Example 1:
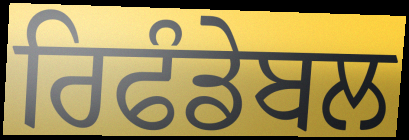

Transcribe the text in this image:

ਰਿਫੰਡੇਬਲ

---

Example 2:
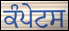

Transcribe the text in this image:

ਕੰਪੇਟਸ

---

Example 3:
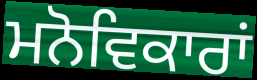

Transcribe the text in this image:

ਮਨੋਵਿਕਾਰਾਂ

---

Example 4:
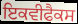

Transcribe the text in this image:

ਇਕਵੀਫੈਕਸ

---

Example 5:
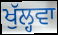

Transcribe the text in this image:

ਖੁੱਲ੍ਹਵਾ